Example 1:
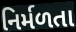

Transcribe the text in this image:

નિર્મળતા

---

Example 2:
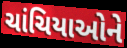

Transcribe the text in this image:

ચાંચિયાઓને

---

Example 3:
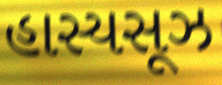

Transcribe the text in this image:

હાસ્યસૂઝ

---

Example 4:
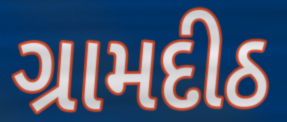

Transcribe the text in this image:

ગ્રામદીઠ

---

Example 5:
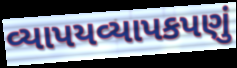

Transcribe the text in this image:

વ્યાપયવ્યાપકપણું